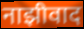
नाझीवाद